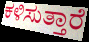
ಕಳಿಸುತ್ತಾರೆ